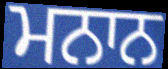
ਮਨਾਨ